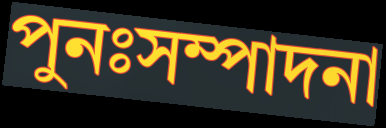
পুনঃসম্পাদনা